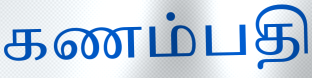
கணம்பதி